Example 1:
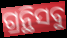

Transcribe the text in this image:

ଗ୍ରନ୍ଥିସବୁ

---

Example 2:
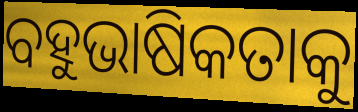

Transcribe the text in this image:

ବହୁଭାଷିକତାକୁ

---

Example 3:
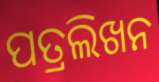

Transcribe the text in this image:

ପତ୍ରଲିଖନ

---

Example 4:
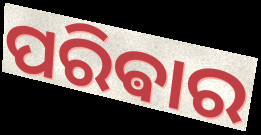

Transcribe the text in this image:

ପରିଵାର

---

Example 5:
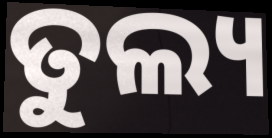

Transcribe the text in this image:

ତୁଲ୍ୟ